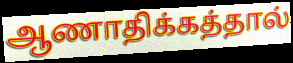
ஆணாதிக்கத்தால்